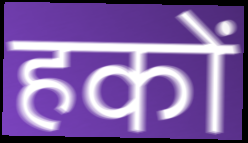
हकों